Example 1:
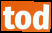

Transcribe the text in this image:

tod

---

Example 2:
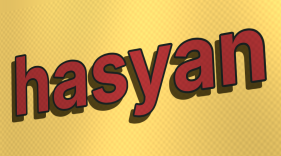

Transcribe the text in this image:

hasyan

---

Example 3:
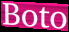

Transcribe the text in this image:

Boto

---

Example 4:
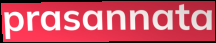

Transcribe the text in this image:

prasannata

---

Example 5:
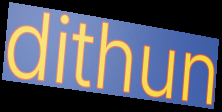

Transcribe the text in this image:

dithun